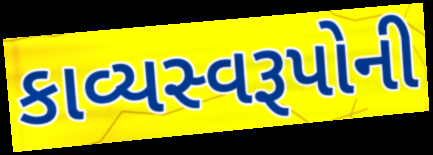
કાવ્યસ્વરૂપોની